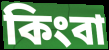
কিংবা